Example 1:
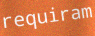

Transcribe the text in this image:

requiram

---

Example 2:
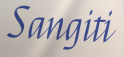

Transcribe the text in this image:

Sangiti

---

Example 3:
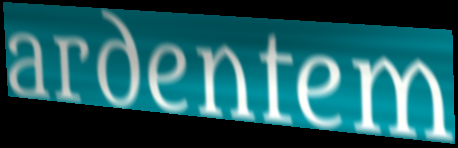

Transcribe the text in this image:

ardentem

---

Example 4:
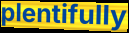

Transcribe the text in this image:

plentifully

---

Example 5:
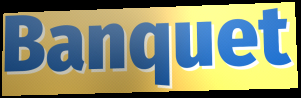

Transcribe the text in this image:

Banquet